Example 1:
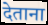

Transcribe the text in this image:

देताना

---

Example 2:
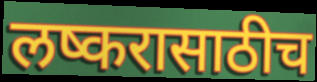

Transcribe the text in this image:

लष्करासाठीच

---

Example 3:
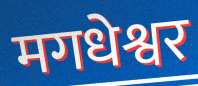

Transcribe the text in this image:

मगधेश्वर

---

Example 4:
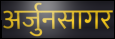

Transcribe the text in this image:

अर्जुनसागर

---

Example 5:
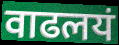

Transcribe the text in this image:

वाढलयं